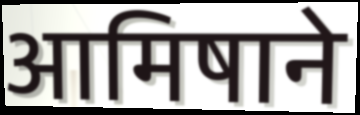
आमिषाने